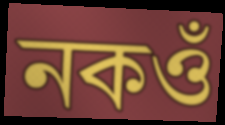
নকওঁ